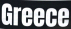
Greece